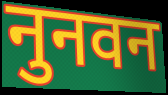
नुनवन